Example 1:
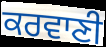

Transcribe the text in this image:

ਕਰਵਾਣੀ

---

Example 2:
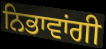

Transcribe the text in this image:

ਨਿਭਾਵਾਂਗੀ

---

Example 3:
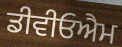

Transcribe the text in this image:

ਡੀਵੀਓਐਮ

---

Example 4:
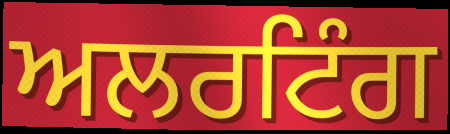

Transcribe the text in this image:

ਅਲਰਟਿੰਗ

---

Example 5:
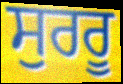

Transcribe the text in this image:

ਸੁਰਰੂ